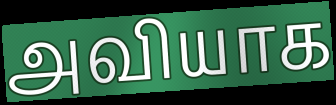
அவியாக